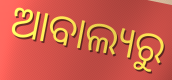
ଆବାଲ୍ୟରୁ